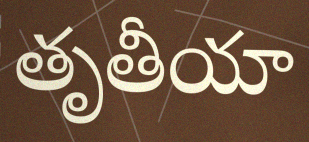
తృతీయా